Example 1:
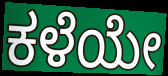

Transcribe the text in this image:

ಕಳೆಯೇ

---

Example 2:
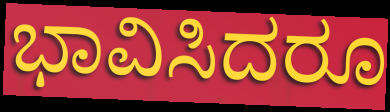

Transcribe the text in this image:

ಭಾವಿಸಿದರೂ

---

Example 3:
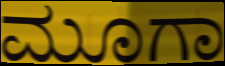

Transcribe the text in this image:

ಮೂಗಾ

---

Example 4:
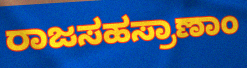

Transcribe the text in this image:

ರಾಜಸಹಸ್ರಾಣಾಂ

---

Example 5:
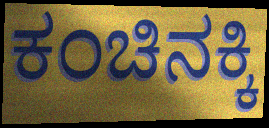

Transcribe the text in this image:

ಕಂಚಿನಕ್ಕಿ